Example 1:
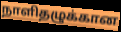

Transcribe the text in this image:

நாளிதழுக்கான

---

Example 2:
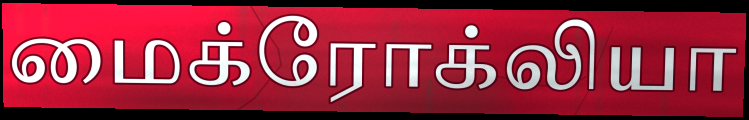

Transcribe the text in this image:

மைக்ரோக்லியா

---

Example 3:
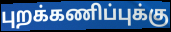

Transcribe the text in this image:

புறக்கணிப்புக்கு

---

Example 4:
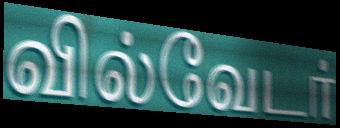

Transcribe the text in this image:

வில்வேடர்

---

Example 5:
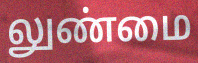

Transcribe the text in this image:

லுண்மை